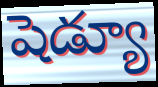
షెడ్యూ